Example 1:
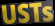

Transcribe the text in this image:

USTs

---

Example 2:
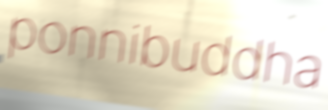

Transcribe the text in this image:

ponnibuddha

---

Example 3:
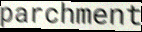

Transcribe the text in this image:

parchment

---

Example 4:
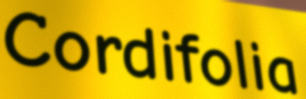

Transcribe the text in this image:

Cordifolia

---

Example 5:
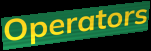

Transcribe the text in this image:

Operators